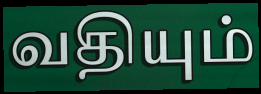
வதியும்